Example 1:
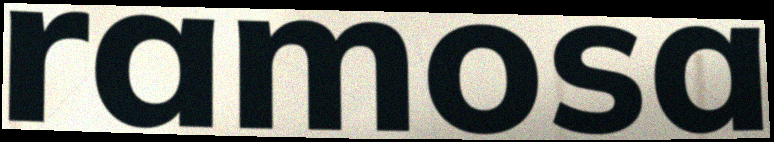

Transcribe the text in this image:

ramosa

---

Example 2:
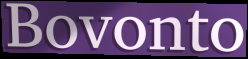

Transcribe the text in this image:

Bovonto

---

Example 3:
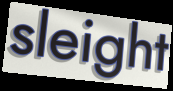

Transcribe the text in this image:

sleight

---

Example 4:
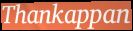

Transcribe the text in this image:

Thankappan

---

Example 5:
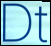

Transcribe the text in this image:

Dt